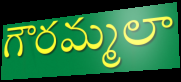
గౌరమ్మలా